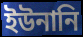
ইউনানি